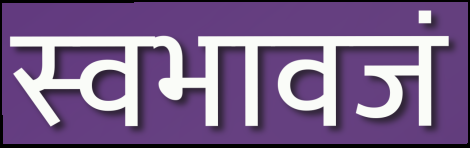
स्वभावजं